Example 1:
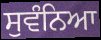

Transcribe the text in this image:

ਸੁਵੰਨਿਆ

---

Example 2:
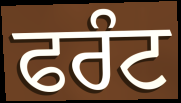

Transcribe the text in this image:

ਫਰੰਟ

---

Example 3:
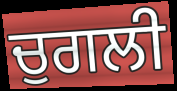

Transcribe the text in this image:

ਚੁਗਲੀ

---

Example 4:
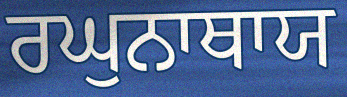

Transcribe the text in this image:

ਰਘੁਨਾਥਾਯ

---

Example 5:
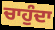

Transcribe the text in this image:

ਚਾਹੁੰਦਾ